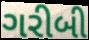
ગરીબી